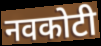
नवकोटी